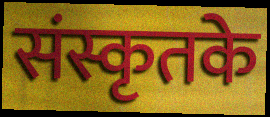
संस्कृतके